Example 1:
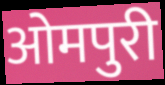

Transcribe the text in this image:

ओमपुरी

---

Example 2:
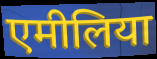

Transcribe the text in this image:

एमीलिया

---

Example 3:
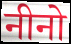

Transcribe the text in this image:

नीनो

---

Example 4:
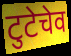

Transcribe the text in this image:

टुटेचेव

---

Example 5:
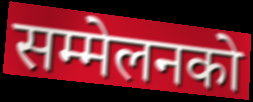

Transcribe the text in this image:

सम्मेलनको